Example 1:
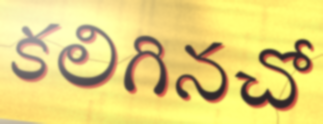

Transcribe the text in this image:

కలిగినచో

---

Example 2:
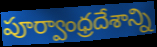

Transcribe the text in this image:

పూర్వాంధ్రదేశాన్ని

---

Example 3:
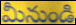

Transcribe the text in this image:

మీనుండి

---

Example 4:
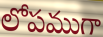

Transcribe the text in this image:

లోపముగా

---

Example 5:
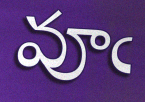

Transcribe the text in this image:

వూఁ